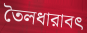
তৈলধারাবৎ